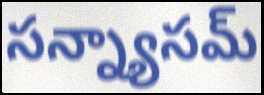
సన్న్యాసమ్